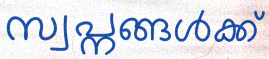
സ്വപ്നങ്ങൾക്ക്